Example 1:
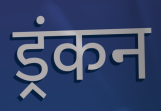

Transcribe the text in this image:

ड्रंकन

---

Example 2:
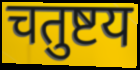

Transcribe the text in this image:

चतुष्टय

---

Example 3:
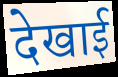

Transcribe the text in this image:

देखाई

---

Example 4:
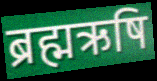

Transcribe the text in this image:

ब्रह्मऋषि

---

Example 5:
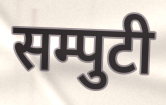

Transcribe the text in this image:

सम्पुटी